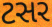
ટસર